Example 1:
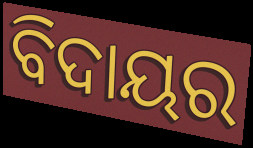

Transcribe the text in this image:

ବିଦାୟର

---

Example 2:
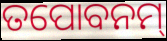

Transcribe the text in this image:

ତପୋବନମ୍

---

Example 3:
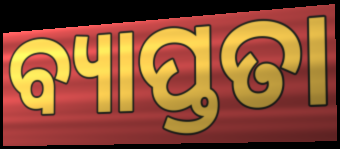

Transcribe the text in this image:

ବ୍ୟାପ୍ତତା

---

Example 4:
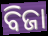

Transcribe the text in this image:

ବିଜା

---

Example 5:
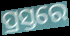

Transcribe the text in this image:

ପ୍ରସ୍ତରେ